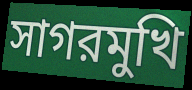
সাগরমুখি